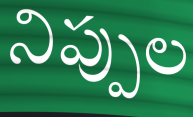
నిప్పుల